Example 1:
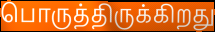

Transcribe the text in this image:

பொருத்திருக்கிறது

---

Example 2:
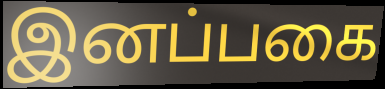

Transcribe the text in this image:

இனப்பகை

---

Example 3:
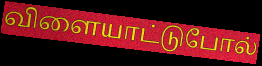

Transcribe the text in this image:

விளையாட்டுபோல்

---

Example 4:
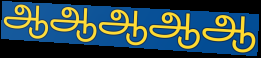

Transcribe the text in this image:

ஆஆஆஆஆ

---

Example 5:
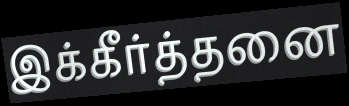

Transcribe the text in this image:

இக்கீர்த்தனை